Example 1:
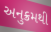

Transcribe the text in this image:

અનુક્રમથી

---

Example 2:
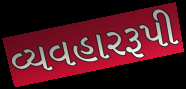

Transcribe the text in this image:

વ્યવહારરૂપી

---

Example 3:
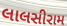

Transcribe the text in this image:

લાલસીરામ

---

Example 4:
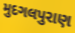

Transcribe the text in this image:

મુદગલપુરાણ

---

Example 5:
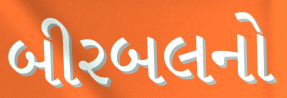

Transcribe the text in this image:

બીરબલનો